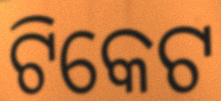
ଟିକେଟ